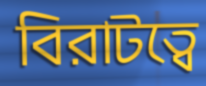
বিরাটত্বে